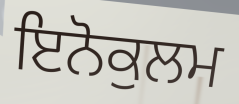
ਇਨੋਕੁਲਮ